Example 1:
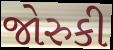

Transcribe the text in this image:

જોરુકી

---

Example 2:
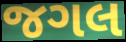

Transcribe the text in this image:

જગલ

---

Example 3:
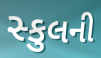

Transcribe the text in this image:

સ્કુલની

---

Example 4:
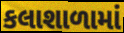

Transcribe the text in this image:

કલાશાળામાં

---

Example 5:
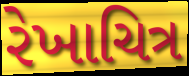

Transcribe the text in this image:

રેખાચિત્ર